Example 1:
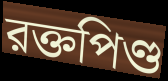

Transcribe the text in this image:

রক্তপিণ্ড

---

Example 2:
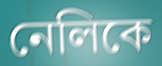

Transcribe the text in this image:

নেলিকে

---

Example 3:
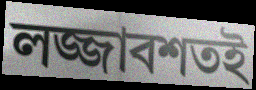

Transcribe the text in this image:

লজ্জাবশতই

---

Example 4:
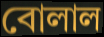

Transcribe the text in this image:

বোলাল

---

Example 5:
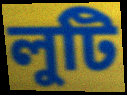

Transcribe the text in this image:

লুটি